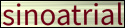
sinoatrial